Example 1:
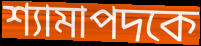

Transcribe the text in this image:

শ্যামাপদকে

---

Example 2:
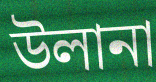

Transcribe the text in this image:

উলানা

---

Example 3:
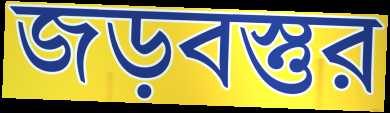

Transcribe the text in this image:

জড়বস্তুর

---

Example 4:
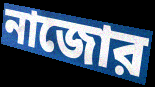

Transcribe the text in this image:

নাজোর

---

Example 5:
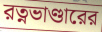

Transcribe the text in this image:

রত্নভাণ্ডারের